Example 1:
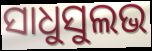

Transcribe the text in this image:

ସାଧୁସୁଲଭ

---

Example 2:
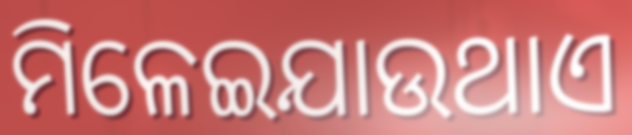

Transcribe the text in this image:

ମିଳେଇଯାଉଥାଏ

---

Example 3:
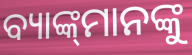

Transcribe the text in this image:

ବ୍ୟାଙ୍କ୍‌ମାନଙ୍କୁ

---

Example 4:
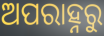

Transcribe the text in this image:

ଅପରାହ୍ନରୁ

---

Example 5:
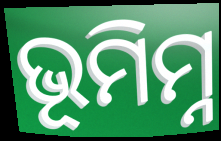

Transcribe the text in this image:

ଭୂମିମ୍ନ